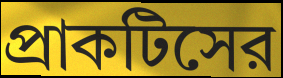
প্রাকটিসের